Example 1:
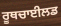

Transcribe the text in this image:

ਰੂਥਚਾਈਲਡ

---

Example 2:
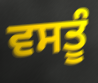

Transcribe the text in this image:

ਵਸਤੂੰ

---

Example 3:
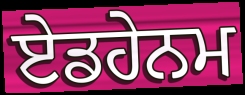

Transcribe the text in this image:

ਏਡਹੇਨਮ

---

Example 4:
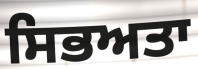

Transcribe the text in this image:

ਸਿਭਅਤਾ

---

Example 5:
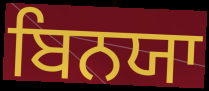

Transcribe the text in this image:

ਬਿਨਯਾ